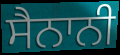
ਸੈਨਾਨੀ